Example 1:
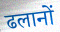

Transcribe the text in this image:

ढलानों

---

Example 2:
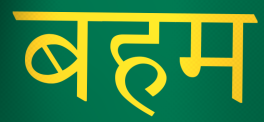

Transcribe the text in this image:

बहम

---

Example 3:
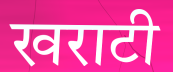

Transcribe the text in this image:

खराटी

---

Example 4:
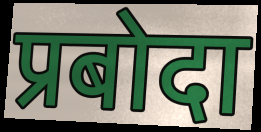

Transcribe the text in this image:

प्रबोदा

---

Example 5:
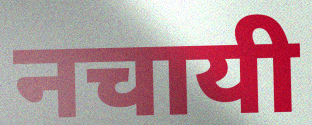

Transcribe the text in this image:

नचायी